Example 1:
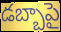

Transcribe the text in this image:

డబ్బాపై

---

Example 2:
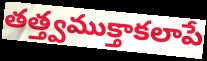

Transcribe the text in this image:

తత్త్వముక్తాకలాపే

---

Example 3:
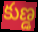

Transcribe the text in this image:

కుణ్డ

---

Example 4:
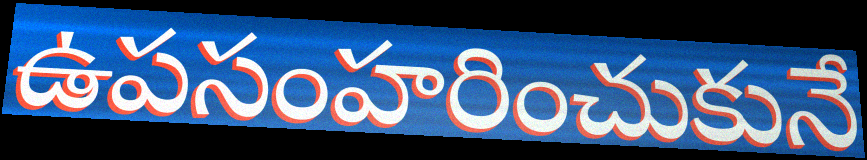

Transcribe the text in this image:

ఉపసంహరించుకునే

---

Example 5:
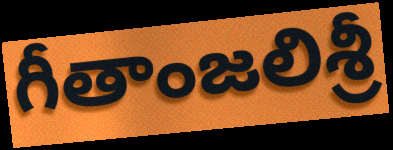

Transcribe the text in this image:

గీతాంజలిశ్రీ